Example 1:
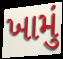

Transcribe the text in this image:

ખામું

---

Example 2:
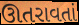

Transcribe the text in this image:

ઊતરાવતાં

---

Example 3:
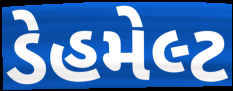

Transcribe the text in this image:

ડેહમેલ્ટ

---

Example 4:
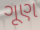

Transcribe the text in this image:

ગૂણ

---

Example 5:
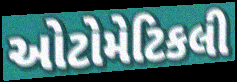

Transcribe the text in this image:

ઓટોમેટિકલી